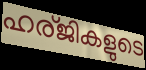
ഹര്ജികളുടെ